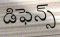
డిఫెన్స్